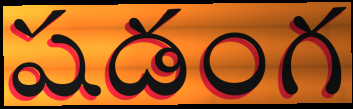
షడంగ